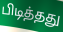
பிடித்தது